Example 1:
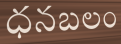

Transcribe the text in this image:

ధనబలం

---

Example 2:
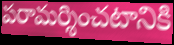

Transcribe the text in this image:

పరామర్శించటానికి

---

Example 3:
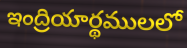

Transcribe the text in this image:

ఇంద్రియార్థములలో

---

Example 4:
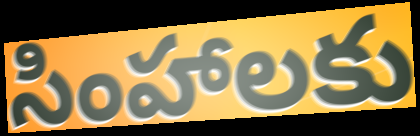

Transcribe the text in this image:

సింహాలకు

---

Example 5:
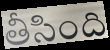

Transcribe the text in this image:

తీసింది